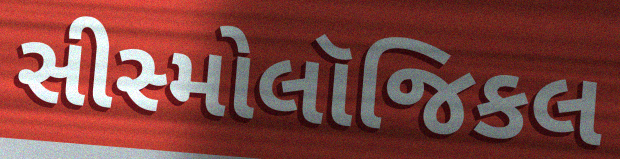
સીસ્મોલૉજિકલ